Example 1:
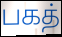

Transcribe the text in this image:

பகத்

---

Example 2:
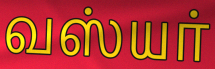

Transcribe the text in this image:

வஸ்யர்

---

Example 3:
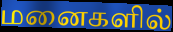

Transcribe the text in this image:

மனைகளில்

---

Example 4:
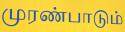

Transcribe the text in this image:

முரண்பாடும்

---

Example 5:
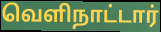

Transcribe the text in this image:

வெளிநாட்டார்